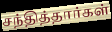
சந்தித்தார்கள்